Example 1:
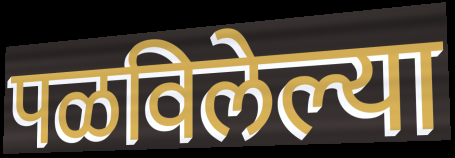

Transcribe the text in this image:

पळविलेल्या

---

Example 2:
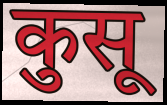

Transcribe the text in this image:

कुसू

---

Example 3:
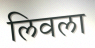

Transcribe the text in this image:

लिवला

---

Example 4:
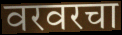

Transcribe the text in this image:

वरवरचा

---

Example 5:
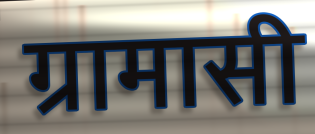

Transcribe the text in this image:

ग्रामासी